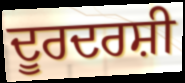
ਦੂਰਦਰਸ਼ੀ